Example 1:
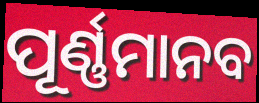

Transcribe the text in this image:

ପୂର୍ଣ୍ଣମାନବ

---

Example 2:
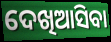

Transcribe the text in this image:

ଦେଖିଆସିବା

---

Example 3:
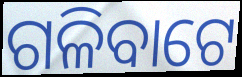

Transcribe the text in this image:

ଗଳିବାଟେ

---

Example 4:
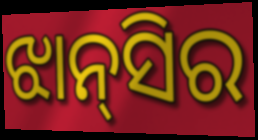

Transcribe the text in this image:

ଝାନ୍‌ସିର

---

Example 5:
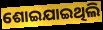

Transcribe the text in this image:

ଶୋଇଯାଇଥିଲି